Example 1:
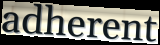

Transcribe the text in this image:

adherent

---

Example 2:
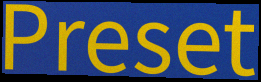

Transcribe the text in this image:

Preset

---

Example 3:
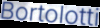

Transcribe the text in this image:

Bortolotti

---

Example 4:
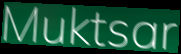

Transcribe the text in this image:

Muktsar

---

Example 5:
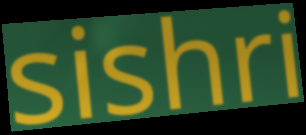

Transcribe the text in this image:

sishri